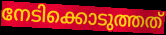
നേടിക്കൊടുത്തത്